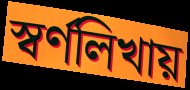
স্বর্ণলিখায়